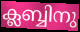
ക്ലബ്ബിനു